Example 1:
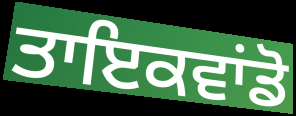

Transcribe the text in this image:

ਤਾਇਕਵਾਂਡੋ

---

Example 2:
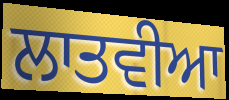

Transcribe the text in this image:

ਲਾਤਵੀਆ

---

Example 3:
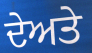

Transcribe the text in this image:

ਦੇਅਤੇ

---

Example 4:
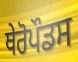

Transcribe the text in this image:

ਥੇਰੋਪੌਡਸ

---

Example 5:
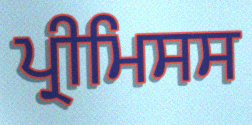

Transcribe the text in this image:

ਪ੍ਰੀਮਿਸਸ